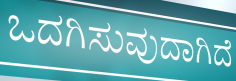
ಒದಗಿಸುವುದಾಗಿದೆ